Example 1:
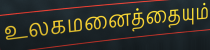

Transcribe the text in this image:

உலகமனைத்தையும்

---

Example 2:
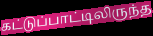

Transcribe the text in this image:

கட்டுப்பாட்டிலிருந்த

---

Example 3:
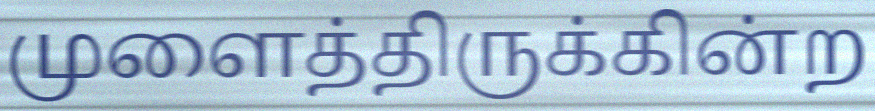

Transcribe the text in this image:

முளைத்திருக்கின்ற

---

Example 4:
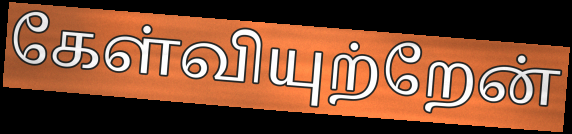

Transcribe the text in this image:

கேள்வியுற்றேன்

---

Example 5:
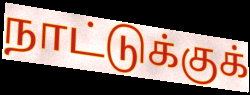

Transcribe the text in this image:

நாட்டுக்குக்